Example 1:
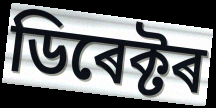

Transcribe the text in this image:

ডিৰেক্টৰ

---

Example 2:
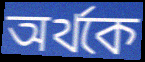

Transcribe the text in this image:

অৰ্থকে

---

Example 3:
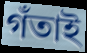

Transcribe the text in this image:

গঁতাই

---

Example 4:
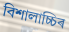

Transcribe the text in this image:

বিশালাচ্চিৰ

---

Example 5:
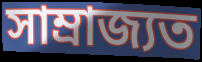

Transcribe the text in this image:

সাম্ৰাজ্যত